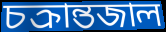
চক্রান্তজাল